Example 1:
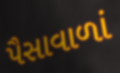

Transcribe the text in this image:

પૈસાવાળાં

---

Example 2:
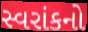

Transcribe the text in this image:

સ્વરાંકનો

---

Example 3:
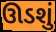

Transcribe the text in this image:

ઊડશું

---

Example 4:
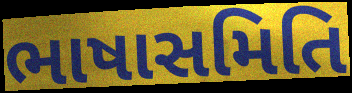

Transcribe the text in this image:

ભાષાસમિતિ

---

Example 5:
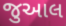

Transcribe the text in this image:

જુઆલ